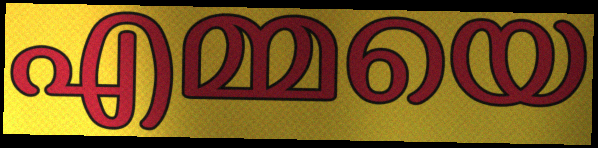
എമ്മയെ